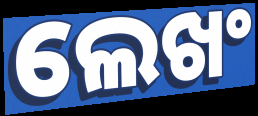
ଲେଖଂ